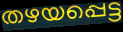
തഴയപ്പെട്ട